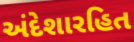
અંદેશારહિત